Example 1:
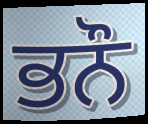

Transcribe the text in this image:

ਭਨੌ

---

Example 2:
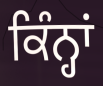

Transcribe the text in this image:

ਕਿੰਨ੍ਹਾਂ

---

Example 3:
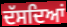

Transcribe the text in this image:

ਦੱਸਦਿਆਂ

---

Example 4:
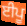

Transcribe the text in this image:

ਈਪੂ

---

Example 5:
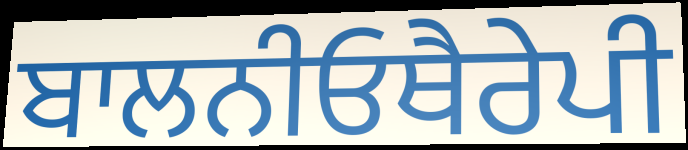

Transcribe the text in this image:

ਬਾਲਨੀਓਥੈਰੇਪੀ